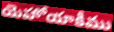
యెహోయాకీము